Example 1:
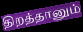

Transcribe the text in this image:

திறத்தானும்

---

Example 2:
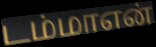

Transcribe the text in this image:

டம்மாஎன்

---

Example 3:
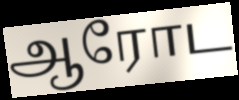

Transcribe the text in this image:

ஆரோட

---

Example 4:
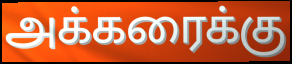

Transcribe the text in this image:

அக்கரைக்கு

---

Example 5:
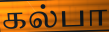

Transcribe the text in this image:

கல்பா